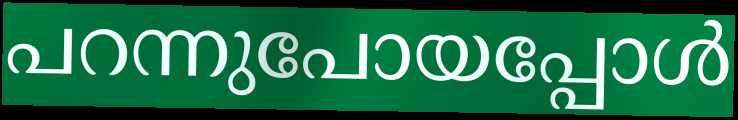
പറന്നുപോയപ്പോൾ